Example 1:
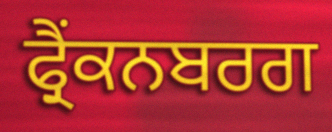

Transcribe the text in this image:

ਫ੍ਰੈਂਕਨਬਰਗ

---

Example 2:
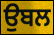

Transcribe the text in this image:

ਉਬਲ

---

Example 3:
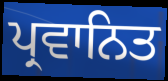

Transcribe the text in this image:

ਪ੍ਰਵਾਨਿਤ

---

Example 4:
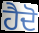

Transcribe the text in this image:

ਹੈਦੋ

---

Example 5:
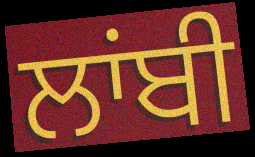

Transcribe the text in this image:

ਲਾਂਬੀ